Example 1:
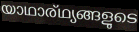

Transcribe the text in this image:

യാഥാര്ഥ്യങ്ങളുടെ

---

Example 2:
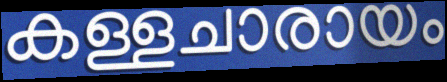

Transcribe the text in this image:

കള്ളചാരായം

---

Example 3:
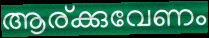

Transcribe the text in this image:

ആര്ക്കുവേണം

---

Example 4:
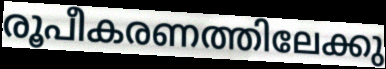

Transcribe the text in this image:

രൂപീകരണത്തിലേക്കു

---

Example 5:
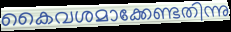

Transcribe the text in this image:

കൈവശമാക്കേണ്ടതിന്നു